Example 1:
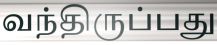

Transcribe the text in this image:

வந்திருப்பது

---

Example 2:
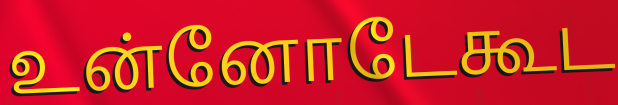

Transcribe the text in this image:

உன்னோடேகூட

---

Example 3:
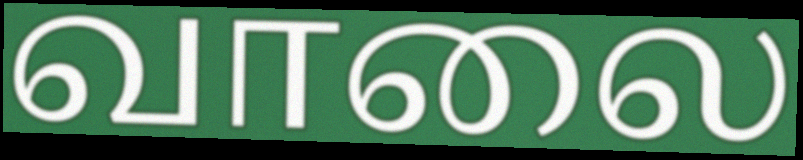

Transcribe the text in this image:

வாலை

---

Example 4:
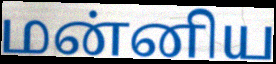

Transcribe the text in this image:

மன்னிய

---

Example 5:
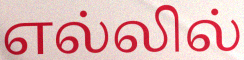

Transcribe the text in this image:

எல்லில்